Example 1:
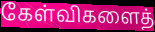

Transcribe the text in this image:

கேள்விகளைத்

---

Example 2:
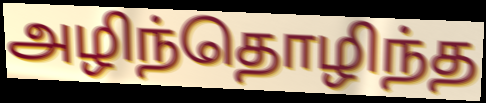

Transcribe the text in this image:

அழிந்தொழிந்த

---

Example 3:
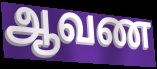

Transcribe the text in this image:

ஆவண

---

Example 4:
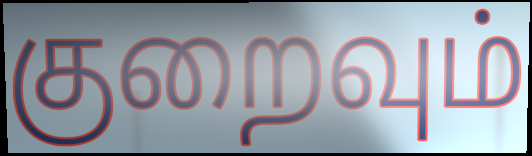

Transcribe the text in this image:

குறைவும்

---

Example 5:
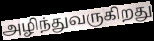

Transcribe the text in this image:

அழிந்துவருகிறது